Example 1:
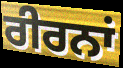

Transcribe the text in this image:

ਰੀਰਨਾਂ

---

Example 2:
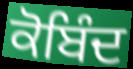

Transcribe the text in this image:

ਕੋਬਿੰਦ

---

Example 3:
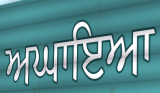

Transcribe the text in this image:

ਅਘਾਇਆ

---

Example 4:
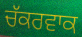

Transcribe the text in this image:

ਚੱਕਰਵਾਕ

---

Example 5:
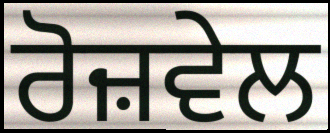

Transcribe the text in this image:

ਰੋਜ਼ਵੇਲ